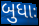
બુધાઃ